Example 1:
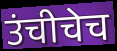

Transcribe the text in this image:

उंचीचेच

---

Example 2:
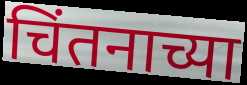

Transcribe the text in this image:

चिंतनाच्या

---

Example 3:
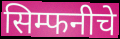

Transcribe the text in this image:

सिम्फनीचे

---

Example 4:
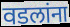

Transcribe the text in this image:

वडलांना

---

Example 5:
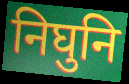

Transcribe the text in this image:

निघुनि